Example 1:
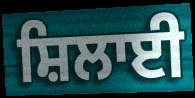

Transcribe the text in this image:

ਸ਼ਿਲਾਈ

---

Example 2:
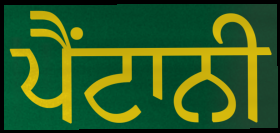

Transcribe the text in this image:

ਪੈਂਟਾਨੀ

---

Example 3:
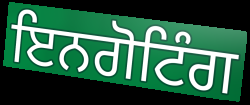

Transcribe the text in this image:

ਇਨਗੋਟਿੰਗ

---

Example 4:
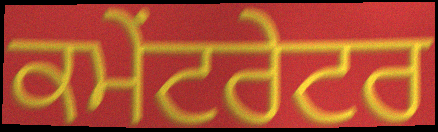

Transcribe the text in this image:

ਕਮੇਂਟਰੇਟਰ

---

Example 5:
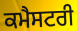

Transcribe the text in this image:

ਕਮੈਸਟਰੀ